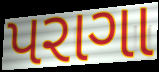
પરાગા